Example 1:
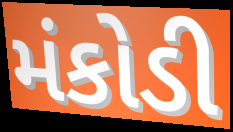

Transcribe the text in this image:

મંકોડી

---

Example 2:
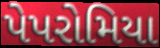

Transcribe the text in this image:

પેપરોમિયા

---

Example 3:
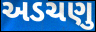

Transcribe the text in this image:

અડચણુ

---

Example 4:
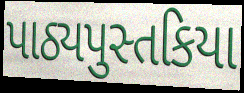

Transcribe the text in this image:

પાઠ્યપુસ્તકિયા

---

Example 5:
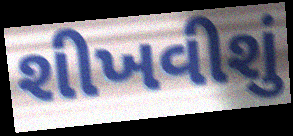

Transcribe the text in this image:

શીખવીશું